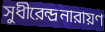
সুধীরেন্দ্রনারায়ণ